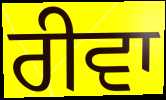
ਰੀਵਾ